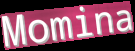
Momina